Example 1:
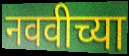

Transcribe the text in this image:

नववीच्या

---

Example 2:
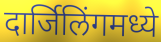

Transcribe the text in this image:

दार्जिलिंगमध्ये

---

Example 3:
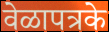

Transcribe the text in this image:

वेळापत्रके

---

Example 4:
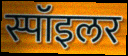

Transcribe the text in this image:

स्पॉइलर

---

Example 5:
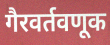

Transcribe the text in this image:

गैरवर्तवणूक